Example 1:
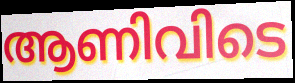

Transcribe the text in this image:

ആണിവിടെ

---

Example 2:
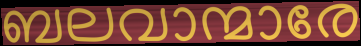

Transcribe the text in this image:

ബലവാന്മാരേ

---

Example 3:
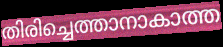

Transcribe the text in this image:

തിരിച്ചെത്താനാകാത്ത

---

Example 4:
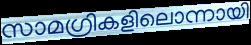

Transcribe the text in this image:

സാമഗ്രികളിലൊന്നായി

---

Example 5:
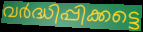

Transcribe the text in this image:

വർദ്ധിപ്പിക്കട്ടെ